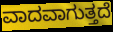
ವಾದವಾಗುತ್ತದೆ